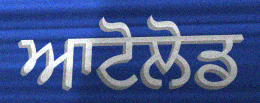
ਆਟੋਲੋਡ